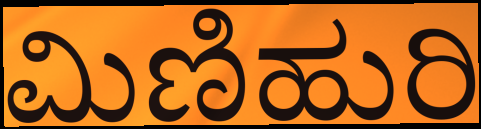
ಮಿಣಿಹುರಿ